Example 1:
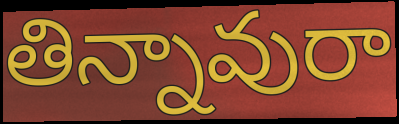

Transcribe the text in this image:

తిన్నావురా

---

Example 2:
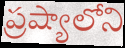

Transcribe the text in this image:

ప్రష్యాలోని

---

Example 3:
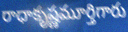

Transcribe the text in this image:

రాధాకృష్ణమూర్తిగారు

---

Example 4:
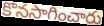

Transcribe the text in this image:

కొనసాగించారు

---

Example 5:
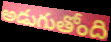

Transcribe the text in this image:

అడుగుతోంది